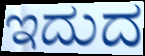
ಇದುದ